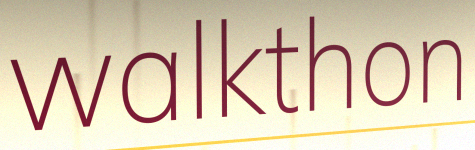
walkthon